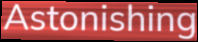
Astonishing